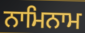
ਨਾਮਿਨਾਮ